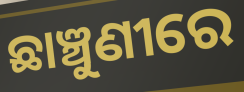
ଛାଞ୍ଚୁଣୀରେ